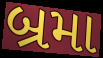
બ્રમા